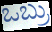
ಒಬ್ರು